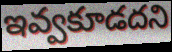
ఇవ్వకూడదని